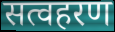
सत्वहरण